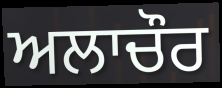
ਅਲਾਚੌਰ